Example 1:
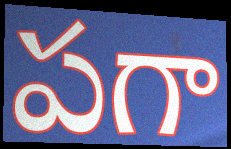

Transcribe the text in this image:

పగా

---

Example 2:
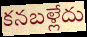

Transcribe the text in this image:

కనబళ్లేదు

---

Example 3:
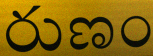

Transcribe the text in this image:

రుణం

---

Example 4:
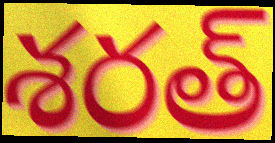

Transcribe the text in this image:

శరత్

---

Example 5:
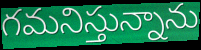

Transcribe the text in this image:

గమనిస్తున్నాను